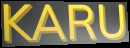
KARU